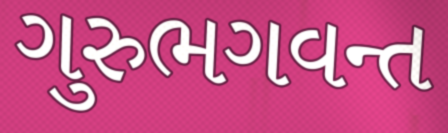
ગુરુભગવન્ત